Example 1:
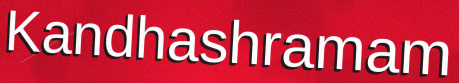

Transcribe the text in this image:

Kandhashramam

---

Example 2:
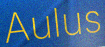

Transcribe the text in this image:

Aulus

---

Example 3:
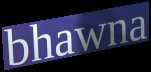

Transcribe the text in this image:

bhawna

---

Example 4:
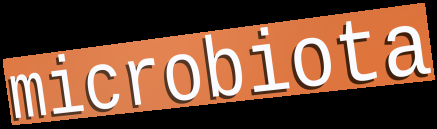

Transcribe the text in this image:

microbiota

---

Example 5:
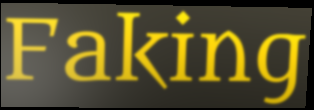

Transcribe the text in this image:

Faking